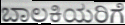
ಬಾಲಕಿಯರಿಗೆ